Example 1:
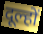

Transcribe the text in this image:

दूल्‍हों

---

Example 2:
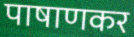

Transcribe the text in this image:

पाषाणकर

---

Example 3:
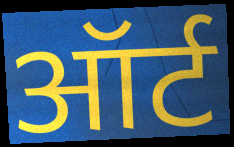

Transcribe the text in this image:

ऑर्ट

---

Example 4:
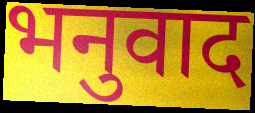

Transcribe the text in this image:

भनुवाद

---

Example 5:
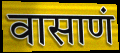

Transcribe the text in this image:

वासाणं